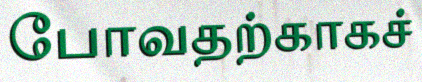
போவதற்காகச்